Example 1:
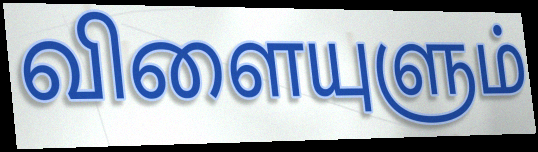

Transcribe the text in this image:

விளையுளும்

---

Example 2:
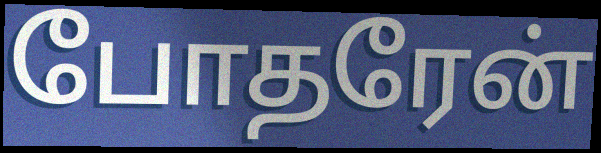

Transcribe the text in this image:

போதரேன்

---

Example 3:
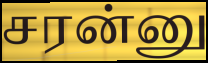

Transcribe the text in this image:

சரன்னு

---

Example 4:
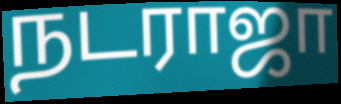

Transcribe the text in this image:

நடராஜா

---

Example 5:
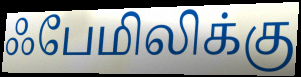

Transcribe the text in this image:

ஃபேமிலிக்கு